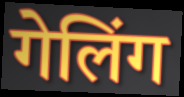
गेलिंग